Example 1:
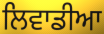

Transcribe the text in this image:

ਲਿਵਾਡੀਆ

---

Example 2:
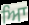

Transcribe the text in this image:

ਆਿ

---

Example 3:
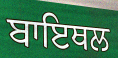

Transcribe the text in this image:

ਬਾਇਥਲ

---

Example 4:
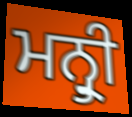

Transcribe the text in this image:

ਮਨ੍ਤ੍ਰੀ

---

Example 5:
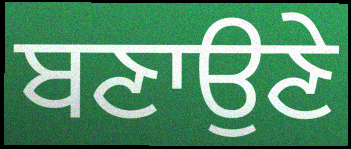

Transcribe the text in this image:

ਬਣਾਉਣੇ